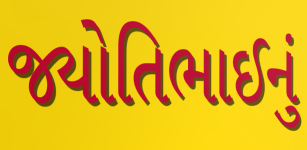
જ્યોતિભાઈનું